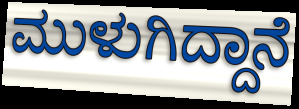
ಮುಳುಗಿದ್ದಾನೆ